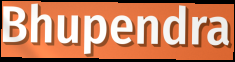
Bhupendra